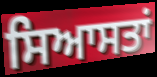
ਸਿਆਸਤਾਂ